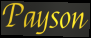
Payson